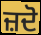
ਜ਼ਦੋ